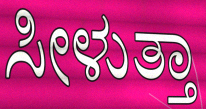
ಸೀಳುತ್ತಾ